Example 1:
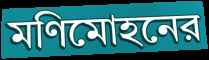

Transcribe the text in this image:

মণিমোহনের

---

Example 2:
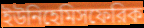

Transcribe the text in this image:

ইউনিহেমিসফেরিক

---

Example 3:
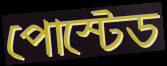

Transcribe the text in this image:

পোস্টেড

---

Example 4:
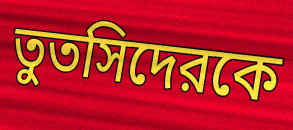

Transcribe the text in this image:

তুতসিদেরকে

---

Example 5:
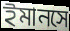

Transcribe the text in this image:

ইমানসে